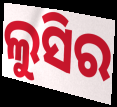
ଲୁସିର